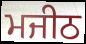
ਮਜੀਠ